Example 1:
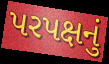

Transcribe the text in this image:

પરપક્ષનું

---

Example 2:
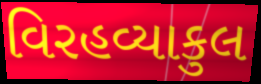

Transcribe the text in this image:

વિરહવ્યાકુલ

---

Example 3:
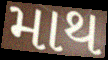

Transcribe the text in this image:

માથ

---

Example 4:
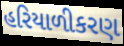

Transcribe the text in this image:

હરિયાળીકરણ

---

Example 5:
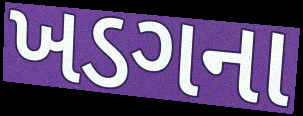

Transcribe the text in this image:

ખડગના